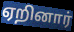
ஏறினார்